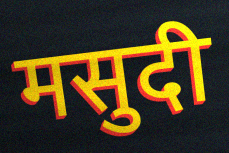
मसुदी